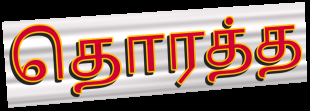
தொரத்த